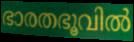
ഭാരതഭൂവിൽ